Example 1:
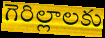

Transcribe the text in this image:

గెరిల్లాలకు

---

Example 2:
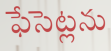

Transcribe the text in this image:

ఫేసెట్లను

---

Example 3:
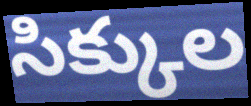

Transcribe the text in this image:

సిక్కుల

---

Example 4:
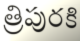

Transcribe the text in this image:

త్రిపురకి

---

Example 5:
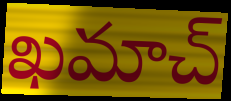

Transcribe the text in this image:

ఖమాచ్